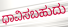
ಧಾವಿಸಬಹುದು